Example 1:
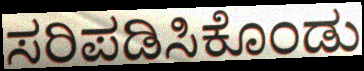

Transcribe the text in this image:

ಸರಿಪಡಿಸಿಕೊಂಡು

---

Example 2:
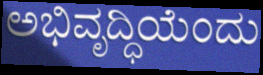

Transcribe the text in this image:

ಅಭಿವೃದ್ಧಿಯೆಂದು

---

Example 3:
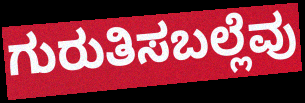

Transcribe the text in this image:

ಗುರುತಿಸಬಲ್ಲೆವು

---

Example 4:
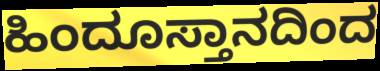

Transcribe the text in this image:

ಹಿಂದೂಸ್ತಾನದಿಂದ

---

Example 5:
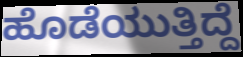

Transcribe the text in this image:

ಹೊಡೆಯುತ್ತಿದ್ದೆ